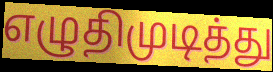
எழுதிமுடித்து